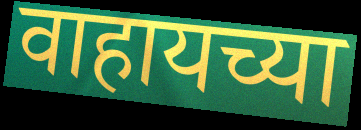
वाहायच्या